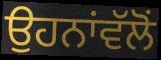
ਉਹਨਾਂਵੱਲੋਂ